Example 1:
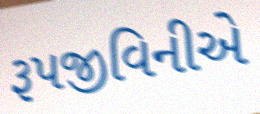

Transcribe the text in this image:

રૂપજીવિનીએ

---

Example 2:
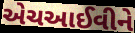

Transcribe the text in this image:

એચઆઈવીને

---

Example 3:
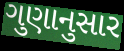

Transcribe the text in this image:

ગુણાનુસાર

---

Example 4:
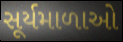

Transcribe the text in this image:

સૂર્યમાળાઓ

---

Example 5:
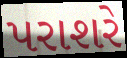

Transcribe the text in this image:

પરાશરે